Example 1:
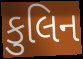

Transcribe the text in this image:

કુલિન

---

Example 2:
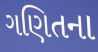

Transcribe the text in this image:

ગણિતના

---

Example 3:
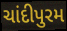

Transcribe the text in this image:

ચાંદીપુરમ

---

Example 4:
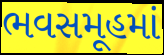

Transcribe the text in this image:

ભવસમૂહમાં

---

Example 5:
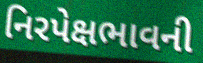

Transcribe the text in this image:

નિરપેક્ષભાવની